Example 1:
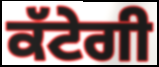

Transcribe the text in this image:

ਕੱਟੇਗੀ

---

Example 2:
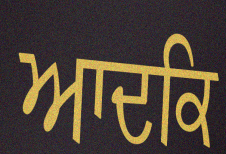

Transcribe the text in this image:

ਆਦਕਿ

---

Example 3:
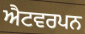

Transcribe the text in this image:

ਐਟਵਰਪਨ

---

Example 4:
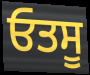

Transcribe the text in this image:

ਓਤਸੂ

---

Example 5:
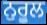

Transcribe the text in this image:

ਨੁਰੂਲ